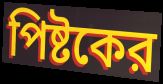
পিষ্টকের